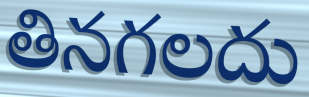
తినగలదు